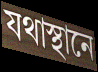
যথাস্থানে